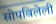
सोपविलेली